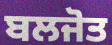
ਬਲਜੋਤ